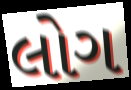
લોગ